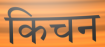
किचन